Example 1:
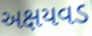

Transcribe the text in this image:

અક્ષયવડ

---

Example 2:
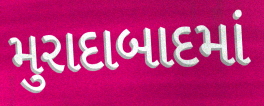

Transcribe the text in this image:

મુરાદાબાદમાં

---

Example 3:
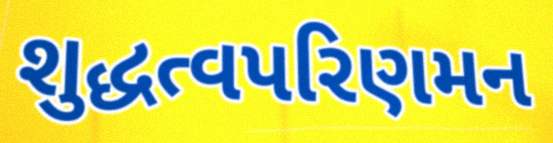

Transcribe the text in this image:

શુદ્ધત્વપરિણમન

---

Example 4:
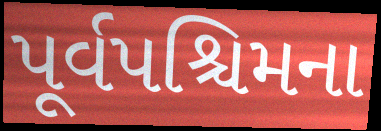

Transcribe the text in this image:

પૂર્વપશ્ચિમના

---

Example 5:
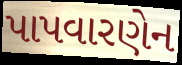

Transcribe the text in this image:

પાપવારણેન